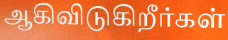
ஆகிவிடுகிறீர்கள்